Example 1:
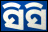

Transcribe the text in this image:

ସିସି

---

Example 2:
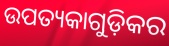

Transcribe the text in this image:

ଉପତ୍ୟକାଗୁଡ଼ିକର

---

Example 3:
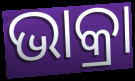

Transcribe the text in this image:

ଭାକ୍ରା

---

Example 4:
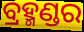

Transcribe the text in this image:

ବ୍ରହ୍ମଣ୍ଡର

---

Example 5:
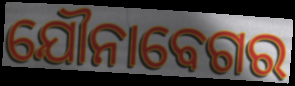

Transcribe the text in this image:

ଯୌନାବେଗର